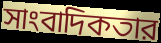
সাংবাদিকতার